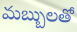
మబ్బులతో